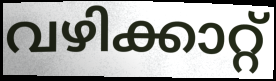
വഴിക്കാറ്റ്